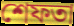
শেফতা